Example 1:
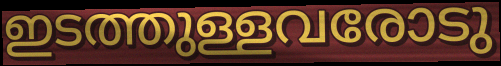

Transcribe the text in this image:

ഇടത്തുള്ളവരോടു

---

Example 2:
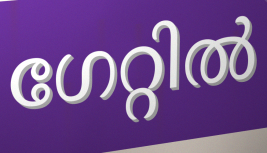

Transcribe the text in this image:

ഗേറ്റിൽ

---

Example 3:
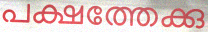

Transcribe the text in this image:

പക്ഷത്തേക്കു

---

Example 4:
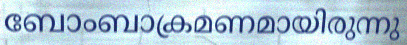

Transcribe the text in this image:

ബോംബാക്രമണമായിരുന്നു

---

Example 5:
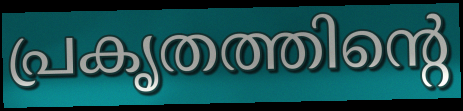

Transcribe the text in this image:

പ്രകൃതത്തിന്റെ